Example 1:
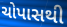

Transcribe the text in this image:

ચોપાસથી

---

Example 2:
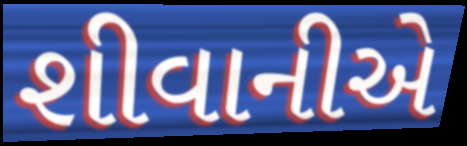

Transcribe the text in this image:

શીવાનીએ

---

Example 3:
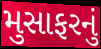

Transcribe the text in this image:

મુસાફરનું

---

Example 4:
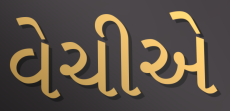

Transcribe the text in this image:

વેચીએ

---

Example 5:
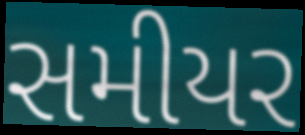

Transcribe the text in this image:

સમીયર